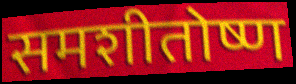
समशीतोष्ण